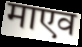
माएव